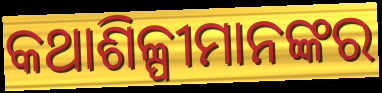
କଥାଶିଳ୍ପୀମାନଙ୍କର